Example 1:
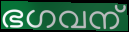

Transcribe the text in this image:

ഭഗവന്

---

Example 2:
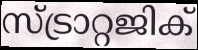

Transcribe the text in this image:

സ്ട്രാറ്റജിക്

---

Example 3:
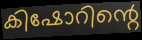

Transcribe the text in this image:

കിഷോറിന്റെ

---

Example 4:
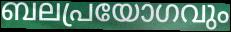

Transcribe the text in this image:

ബലപ്രയോഗവും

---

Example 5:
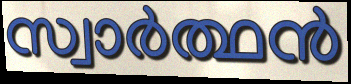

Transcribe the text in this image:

സ്വാർത്ഥൻ